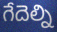
గేదెల్ని